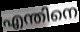
എന്തിനെ